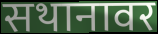
सथानावर